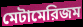
মেটামেরিজম